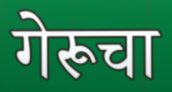
गेरूचा